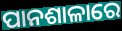
ପାନଶାଳାରେ